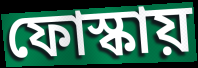
ফোস্কায়